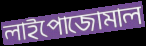
লাইপোজোমাল